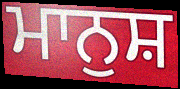
ਮਾਨੁਸ਼